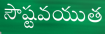
సౌష్టవయుత